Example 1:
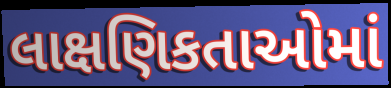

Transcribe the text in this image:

લાક્ષણિકતાઓમાં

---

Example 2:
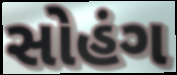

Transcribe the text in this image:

સોહંગ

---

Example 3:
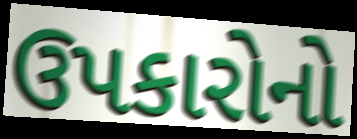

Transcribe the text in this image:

ઉપકારોનો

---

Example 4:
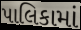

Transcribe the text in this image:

પાલિકામાં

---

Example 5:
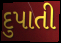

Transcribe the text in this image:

દુપાતી